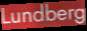
Lundberg